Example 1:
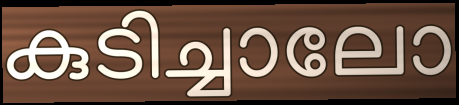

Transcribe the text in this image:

കുടിച്ചാലോ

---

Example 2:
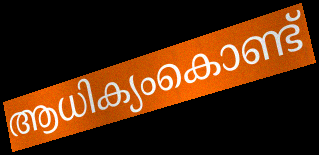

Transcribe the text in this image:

ആധിക്യംകൊണ്ട്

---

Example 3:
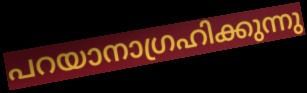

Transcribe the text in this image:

പറയാനാഗ്രഹിക്കുന്നു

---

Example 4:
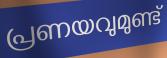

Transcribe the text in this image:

പ്രണയവുമുണ്ട്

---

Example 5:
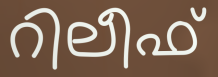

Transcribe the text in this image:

റിലീഫ്